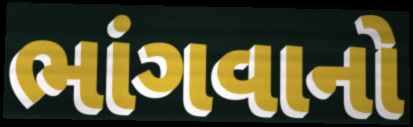
ભાંગવાનો